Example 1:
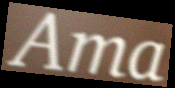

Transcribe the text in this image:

Ama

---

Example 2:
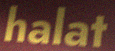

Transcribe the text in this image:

halat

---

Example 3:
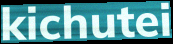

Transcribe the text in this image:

kichutei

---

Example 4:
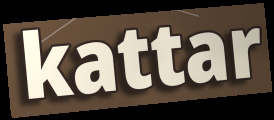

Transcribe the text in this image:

kattar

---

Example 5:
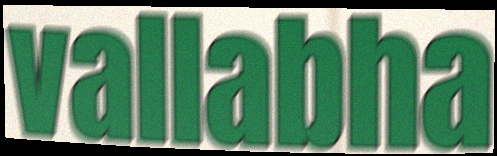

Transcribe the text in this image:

vallabha